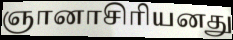
ஞானாசிரியனது